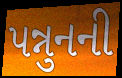
પન્નુનની